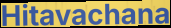
Hitavachana